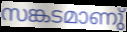
സങ്കടമാണു്